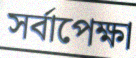
সর্বাপেক্ষা